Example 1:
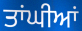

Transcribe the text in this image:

ਤਾਂਘੀਆਂ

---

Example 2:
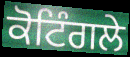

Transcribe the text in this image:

ਕੋਟਿੰਗਲੇ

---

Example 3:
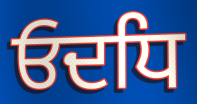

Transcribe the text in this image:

ਓਦਧਿ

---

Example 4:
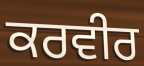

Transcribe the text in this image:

ਕਰਵੀਰ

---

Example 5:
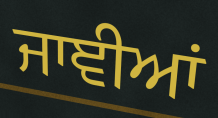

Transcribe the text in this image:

ਜਾਞੀਆਂ